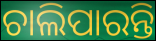
ଚାଲିପାରନ୍ତି